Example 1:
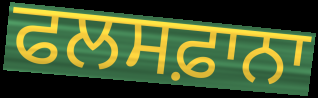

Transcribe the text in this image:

ਫਲਸਫ਼ਾਨਾ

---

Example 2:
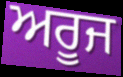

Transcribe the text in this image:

ਅਰੂਜ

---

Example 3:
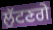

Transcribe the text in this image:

ਲੁੱਟਣਗੇ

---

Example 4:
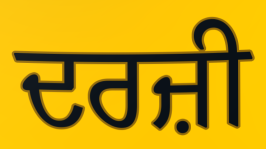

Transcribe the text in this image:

ਦਰਜ਼ੀ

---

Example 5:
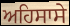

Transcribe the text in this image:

ਅਹਿਸਾਸੇ